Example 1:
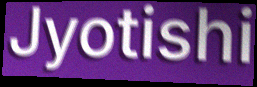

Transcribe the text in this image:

Jyotishi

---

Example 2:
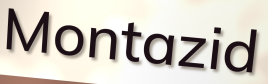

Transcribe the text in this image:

Montazid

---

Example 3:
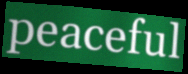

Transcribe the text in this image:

peaceful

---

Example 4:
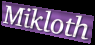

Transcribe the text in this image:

Mikloth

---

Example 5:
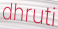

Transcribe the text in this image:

dhruti